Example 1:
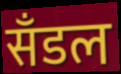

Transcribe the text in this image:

सँडल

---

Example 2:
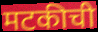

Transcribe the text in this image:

मटकीची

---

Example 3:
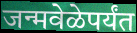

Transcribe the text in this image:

जन्मवेळेपर्यंत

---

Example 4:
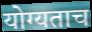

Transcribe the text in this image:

योग्यताच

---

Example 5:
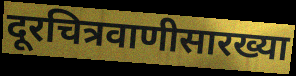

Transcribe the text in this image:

दूरचित्रवाणीसारख्या